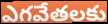
ఎగవేతలకు